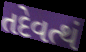
તદેવત્થં